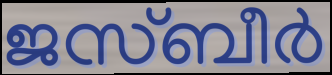
ജസ്ബീർ